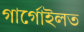
গাৰ্গোইলত